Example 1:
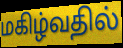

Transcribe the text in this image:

மகிழ்வதில்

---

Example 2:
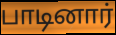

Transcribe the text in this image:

பாடினார்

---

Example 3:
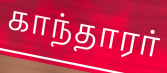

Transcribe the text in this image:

காந்தாரர்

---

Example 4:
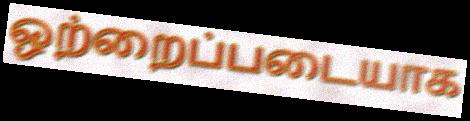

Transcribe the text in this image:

ஒற்றைப்படையாக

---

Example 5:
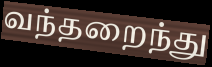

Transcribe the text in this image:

வந்தறைந்து